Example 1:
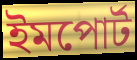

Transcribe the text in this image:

ইমপোর্ট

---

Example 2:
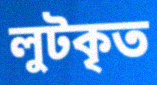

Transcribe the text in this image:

লুটকৃত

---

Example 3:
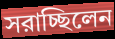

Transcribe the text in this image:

সরাচ্ছিলেন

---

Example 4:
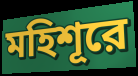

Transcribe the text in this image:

মহিশূরে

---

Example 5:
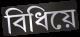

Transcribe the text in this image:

বিধিয়ে